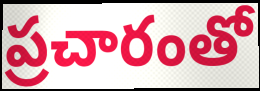
ప్రచారంతో